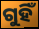
ଗୁହିଁ